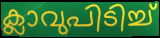
ക്ലാവുപിടിച്ച്